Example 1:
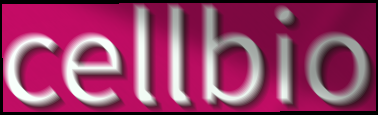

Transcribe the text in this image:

cellbio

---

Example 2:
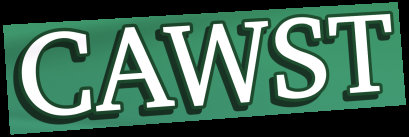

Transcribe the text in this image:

CAWST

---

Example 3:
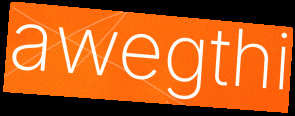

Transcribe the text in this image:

awegthi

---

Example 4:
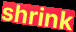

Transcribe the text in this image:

shrink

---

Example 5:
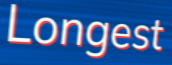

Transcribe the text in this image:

Longest